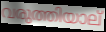
വരുത്തിയാല്